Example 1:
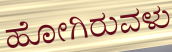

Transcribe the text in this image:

ಹೋಗಿರುವಳು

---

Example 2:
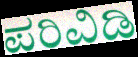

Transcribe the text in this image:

ಪರಿವಿಡಿ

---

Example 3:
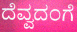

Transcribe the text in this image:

ದೆವ್ವದಂಗೆ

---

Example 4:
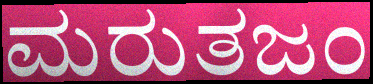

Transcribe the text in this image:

ಮರುತಜಂ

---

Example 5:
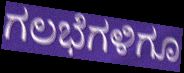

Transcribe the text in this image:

ಗಲಭೆಗಳಿಗೂ